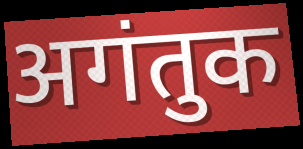
अगंतुक